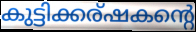
കുട്ടിക്കര്ഷകന്റെ